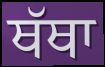
ਥੱਥਾ